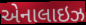
એનાલાઇઝ